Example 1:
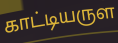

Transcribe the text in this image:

காட்டியருள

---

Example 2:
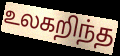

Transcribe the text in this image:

உலகறிந்த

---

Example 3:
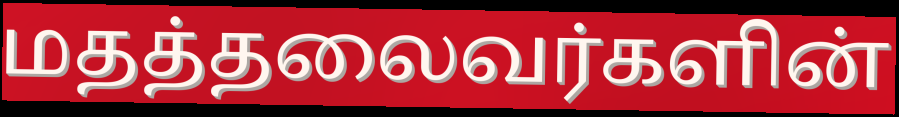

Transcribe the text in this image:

மதத்தலைவர்களின்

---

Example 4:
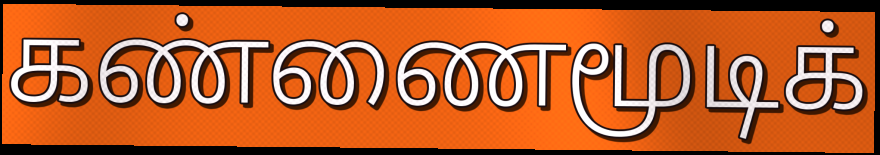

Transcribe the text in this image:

கண்ணைமூடிக்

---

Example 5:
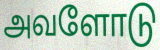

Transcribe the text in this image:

அவளோடு